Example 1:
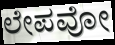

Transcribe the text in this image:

ಲೇಪವೋ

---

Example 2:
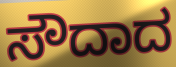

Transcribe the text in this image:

ಸೌದಾದ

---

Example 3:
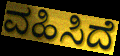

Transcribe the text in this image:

ವಹಿಸಿದೆ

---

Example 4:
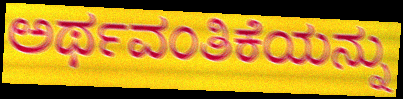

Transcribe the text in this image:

ಅರ್ಥವಂತಿಕೆಯನ್ನು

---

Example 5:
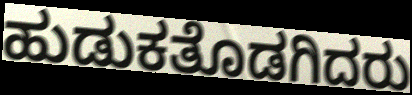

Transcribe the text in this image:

ಹುಡುಕತೊಡಗಿದರು